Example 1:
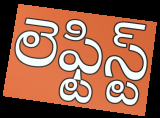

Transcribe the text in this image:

లెఫ్టిస్ట్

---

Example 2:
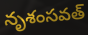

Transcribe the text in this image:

నృశంసవత్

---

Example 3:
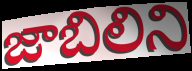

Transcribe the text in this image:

జాబిలిని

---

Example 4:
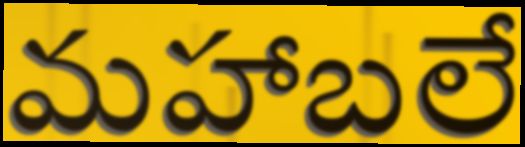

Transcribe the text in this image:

మహాబలే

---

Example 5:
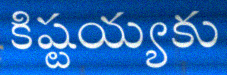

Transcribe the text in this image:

కిష్టయ్యకు